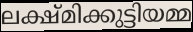
ലക്ഷ്മിക്കുട്ടിയമ്മ